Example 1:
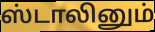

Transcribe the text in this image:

ஸ்டாலினும்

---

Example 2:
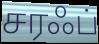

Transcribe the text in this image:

சரஃப்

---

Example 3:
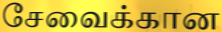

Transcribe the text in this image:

சேவைக்கான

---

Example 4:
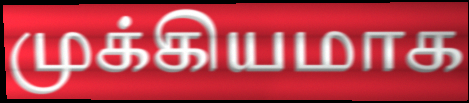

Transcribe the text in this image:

முக்கியமாக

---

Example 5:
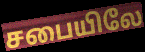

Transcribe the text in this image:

சபையிலே